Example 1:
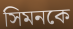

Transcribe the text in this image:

সিমনকে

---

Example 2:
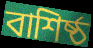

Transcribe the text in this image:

বাশিষ্ঠ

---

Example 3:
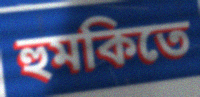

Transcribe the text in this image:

হুমকিতে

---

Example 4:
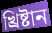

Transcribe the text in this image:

খ্রিষ্টান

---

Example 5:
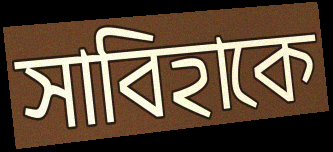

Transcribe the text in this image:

সাবিহাকে